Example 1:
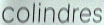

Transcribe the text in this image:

colindres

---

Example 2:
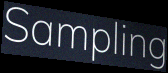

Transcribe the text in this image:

Sampling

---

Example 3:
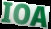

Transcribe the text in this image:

IOA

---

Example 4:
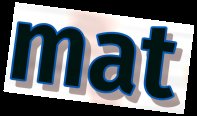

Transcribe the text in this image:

mat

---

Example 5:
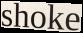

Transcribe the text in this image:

shoke